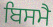
ਬਿਸਮੈ